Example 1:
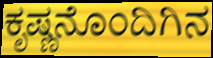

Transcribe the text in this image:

ಕೃಷ್ಣನೊಂದಿಗಿನ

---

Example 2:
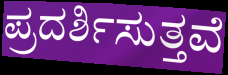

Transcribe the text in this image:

ಪ್ರದರ್ಶಿಸುತ್ತವೆ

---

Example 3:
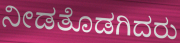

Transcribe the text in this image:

ನೀಡತೊಡಗಿದರು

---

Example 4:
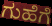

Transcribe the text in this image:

ಗುಹೆಗೆ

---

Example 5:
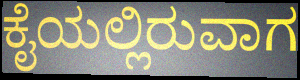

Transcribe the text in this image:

ಕೈಯಲ್ಲಿರುವಾಗ